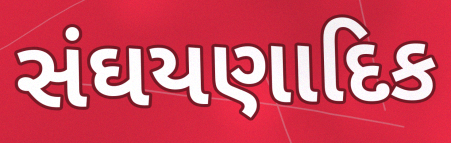
સંઘયણાદિક